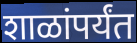
शाळांपर्यंत